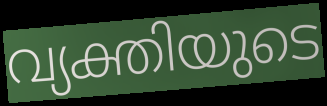
വ്യക്തിയുടെ